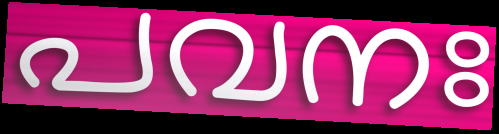
പവനഃ